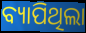
ବ୍ୟାପିଥିଲା